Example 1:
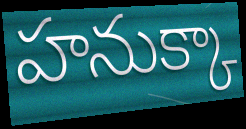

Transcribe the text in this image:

హనుక్కా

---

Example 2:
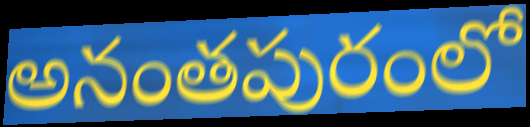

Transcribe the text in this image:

అనంతపురంలో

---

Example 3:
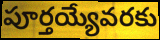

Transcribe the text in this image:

పూర్తయ్యేవరకు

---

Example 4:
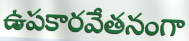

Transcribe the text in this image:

ఉపకారవేతనంగా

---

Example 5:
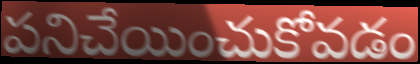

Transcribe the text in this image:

పనిచేయించుకోవడం